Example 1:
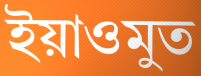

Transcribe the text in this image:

ইয়াওমুত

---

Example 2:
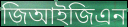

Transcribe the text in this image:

জিআইজিএন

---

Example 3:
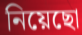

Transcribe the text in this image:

নিয়েছো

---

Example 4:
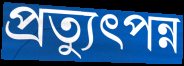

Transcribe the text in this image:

প্রত্যুৎপন্ন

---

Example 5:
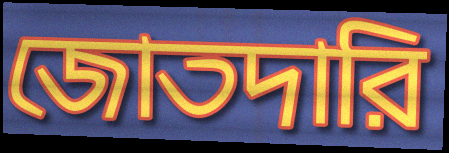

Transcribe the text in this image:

জোতদারি